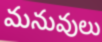
మనువులు